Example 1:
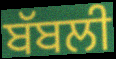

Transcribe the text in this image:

ਬੱਬਲੀ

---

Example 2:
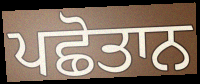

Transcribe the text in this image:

ਪਛੋਤਾਨ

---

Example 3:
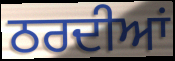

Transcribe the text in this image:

ਠਰਦੀਆਂ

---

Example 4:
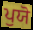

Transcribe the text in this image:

ਪੁਯੋ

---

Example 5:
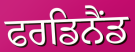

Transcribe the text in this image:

ਫਰਡਿਨੈਂਡ